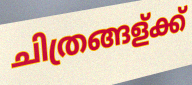
ചിത്രങ്ങള്ക്ക്